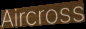
Aircross